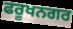
ਫਰੂਖਨਗਰ